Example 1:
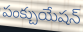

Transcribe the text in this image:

పంక్చుయేషన్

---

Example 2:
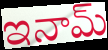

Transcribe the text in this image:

ఇనామ్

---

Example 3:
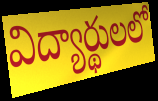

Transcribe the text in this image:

విద్యార్థులలో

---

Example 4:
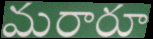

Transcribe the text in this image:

మరారూ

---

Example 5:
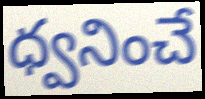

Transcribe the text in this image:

ధ్వనించే